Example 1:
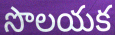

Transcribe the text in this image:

సొలయక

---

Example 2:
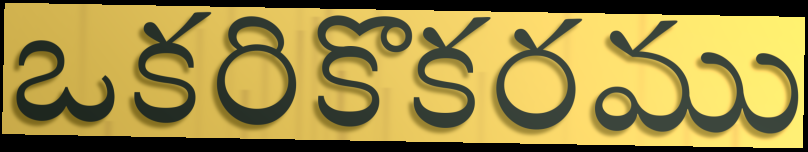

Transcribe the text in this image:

ఒకరికొకరము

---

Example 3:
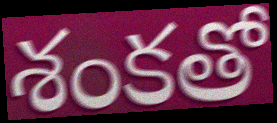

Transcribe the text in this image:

శంకతో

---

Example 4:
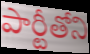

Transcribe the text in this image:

పార్టీతోని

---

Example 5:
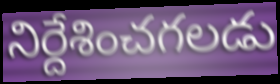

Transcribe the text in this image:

నిర్దేశించగలడు